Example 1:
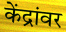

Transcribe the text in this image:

केंद्रांवर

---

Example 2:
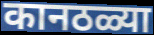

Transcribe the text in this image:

कानठळ्या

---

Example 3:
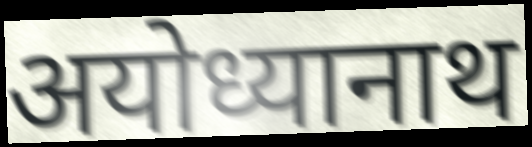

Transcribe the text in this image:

अयोध्यानाथ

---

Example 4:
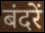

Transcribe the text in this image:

बंदरें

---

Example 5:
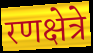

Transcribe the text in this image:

रणक्षेत्रे